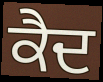
ਕੈਦ